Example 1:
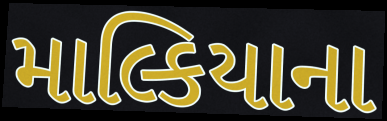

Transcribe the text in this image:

માલ્કિયાના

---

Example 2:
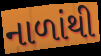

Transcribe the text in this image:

નાળાંથી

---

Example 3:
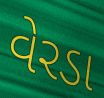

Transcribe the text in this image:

વેરડા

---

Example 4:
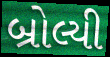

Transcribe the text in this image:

બ્રોલ્યી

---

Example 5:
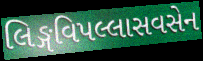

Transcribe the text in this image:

લિઙ્ગવિપલ્લાસવસેન